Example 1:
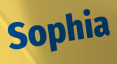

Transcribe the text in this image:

Sophia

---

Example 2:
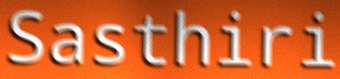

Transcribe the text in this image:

Sasthiri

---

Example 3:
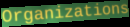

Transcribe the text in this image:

Organizations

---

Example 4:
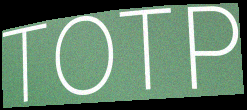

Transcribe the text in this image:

TOTP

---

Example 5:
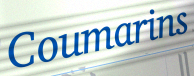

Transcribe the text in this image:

Coumarins